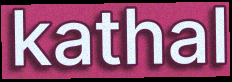
kathal